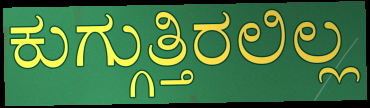
ಕುಗ್ಗುತ್ತಿರಲಿಲ್ಲ